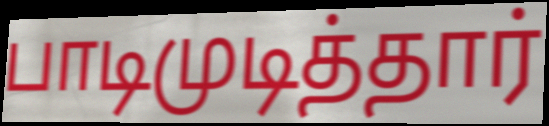
பாடிமுடித்தார்